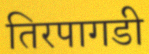
तिरपागडी